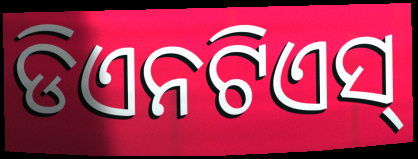
ଡିଏନଟିଏସ୍